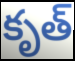
కృత్